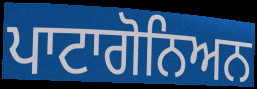
ਪਾਟਾਗੋਨਿਅਨ